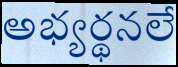
అభ్యర్థనలే